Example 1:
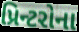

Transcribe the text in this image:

પ્રિન્ટરોના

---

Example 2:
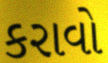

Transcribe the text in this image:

કરાવો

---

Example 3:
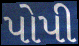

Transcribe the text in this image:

પોપી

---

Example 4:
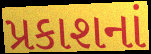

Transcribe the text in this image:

પ્રકાશનાં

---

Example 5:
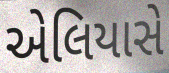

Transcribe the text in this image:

એલિયાસે